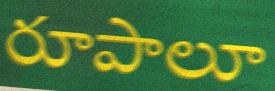
రూపాలూ